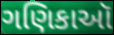
ગણિકાઑ